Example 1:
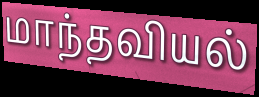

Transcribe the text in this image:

மாந்தவியல்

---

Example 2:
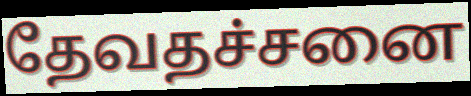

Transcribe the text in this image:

தேவதச்சனை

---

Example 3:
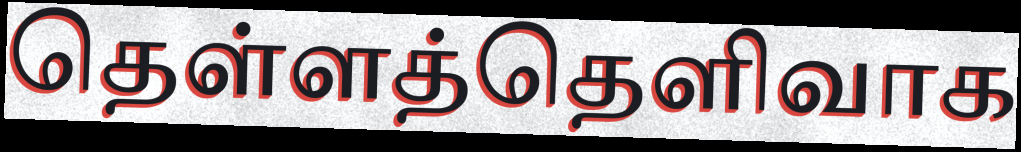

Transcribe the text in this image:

தெள்ளத்தெளிவாக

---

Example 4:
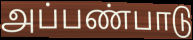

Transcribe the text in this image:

அப்பண்பாடு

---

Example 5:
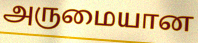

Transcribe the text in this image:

அருமையான